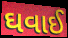
ઘવાઈ